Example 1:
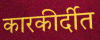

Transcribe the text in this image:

कारकीर्दीत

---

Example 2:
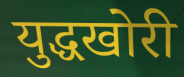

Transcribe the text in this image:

युद्धखोरी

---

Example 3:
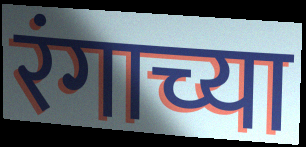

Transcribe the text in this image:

रंगाच्या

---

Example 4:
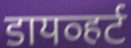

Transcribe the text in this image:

डायव्हर्ट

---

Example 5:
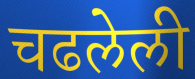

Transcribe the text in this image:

चढलेली